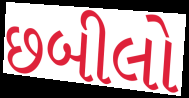
છબીલો